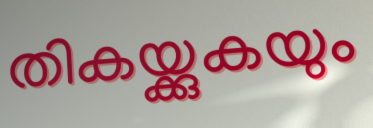
തികയ്ക്കുകയും